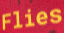
Flies